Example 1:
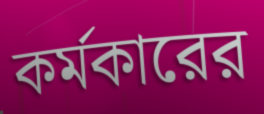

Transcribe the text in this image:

কর্মকারের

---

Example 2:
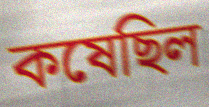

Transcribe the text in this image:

কষেছিল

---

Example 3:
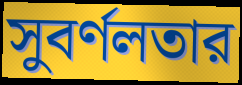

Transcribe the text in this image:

সুবর্ণলতার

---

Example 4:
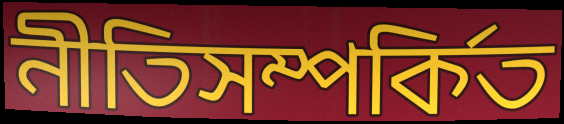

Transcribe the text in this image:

নীতিসম্পর্কিত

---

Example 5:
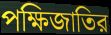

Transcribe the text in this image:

পক্ষিজাতির